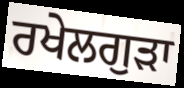
ਰਖੇਲਗੁੜਾ